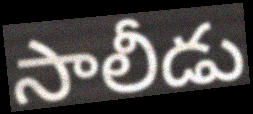
సాలీడు